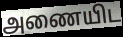
அணையிட